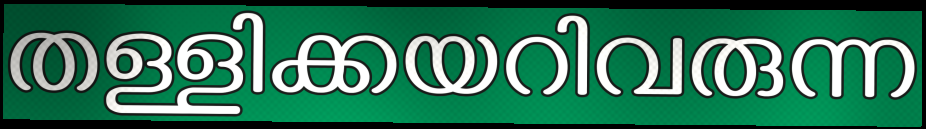
തള്ളിക്കയറിവരുന്ന